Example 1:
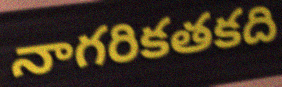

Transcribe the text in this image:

నాగరికతకది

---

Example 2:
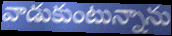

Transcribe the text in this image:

వాడుకుంటున్నాను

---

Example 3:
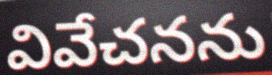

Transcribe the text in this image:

వివేచనను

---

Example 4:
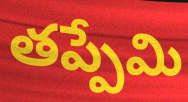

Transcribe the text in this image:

తప్పేమి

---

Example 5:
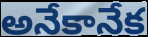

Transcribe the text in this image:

అనేకానేక